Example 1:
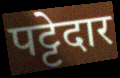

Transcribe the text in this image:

पट्टेदार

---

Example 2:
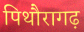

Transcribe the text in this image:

पिथौरागढ़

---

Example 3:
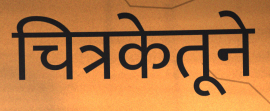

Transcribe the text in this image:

चित्रकेतूने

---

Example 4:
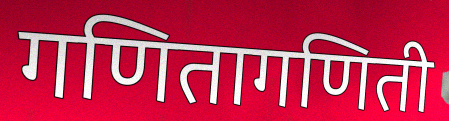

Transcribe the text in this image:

गणितागणिती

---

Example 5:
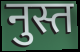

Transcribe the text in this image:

नुस्त